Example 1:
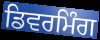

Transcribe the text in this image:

ਡਿਵਰਮਿੰਗ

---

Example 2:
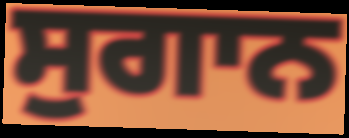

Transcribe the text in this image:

ਸੁਗਾਨ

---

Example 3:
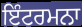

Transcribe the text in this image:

ਇੰਟਰਮਨਾ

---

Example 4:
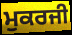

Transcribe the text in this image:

ਮੁਕਰਜੀ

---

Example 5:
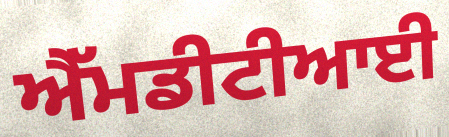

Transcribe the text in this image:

ਐੱਮਡੀਟੀਆਈ